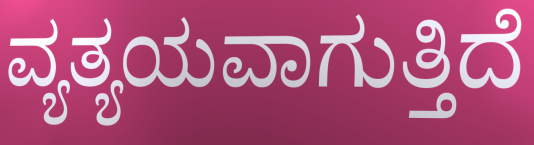
ವ್ಯತ್ಯಯವಾಗುತ್ತಿದೆ